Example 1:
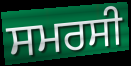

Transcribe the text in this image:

ਸਮਰਸੀ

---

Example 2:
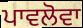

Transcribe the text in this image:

ਪਾਵਲੋਵਾ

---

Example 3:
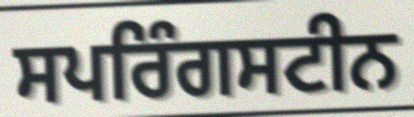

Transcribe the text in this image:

ਸਪਰਿੰਗਸਟੀਨ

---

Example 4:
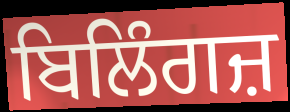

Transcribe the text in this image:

ਬਿਲਿੰਗਜ਼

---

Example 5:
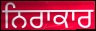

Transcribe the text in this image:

ਨਿਰਾਕਾਰ